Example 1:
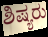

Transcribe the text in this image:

ಶಿಷ್ಯರು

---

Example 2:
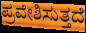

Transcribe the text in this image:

ಪ್ರವೇಶಿಸುತ್ತದೆ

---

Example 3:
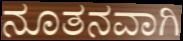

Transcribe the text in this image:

ನೂತನವಾಗಿ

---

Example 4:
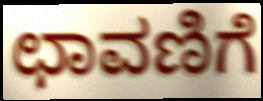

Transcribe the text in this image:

ಛಾವಣಿಗೆ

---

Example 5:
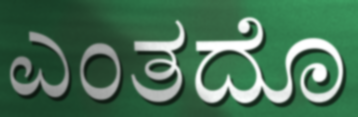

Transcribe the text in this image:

ಎಂತದೊ